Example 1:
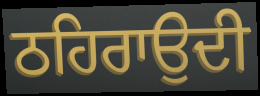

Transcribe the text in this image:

ਠਹਿਰਾਉਦੀ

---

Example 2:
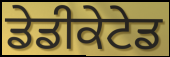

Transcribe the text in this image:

ਡੇਡੀਕੇਟੇਡ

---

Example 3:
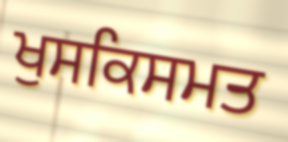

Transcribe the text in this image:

ਖੁਸਕਿਸਮਤ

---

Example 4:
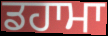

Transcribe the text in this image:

ਡਹਾਮਾ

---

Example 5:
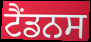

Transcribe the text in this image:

ਟੈਂਡਨਸ